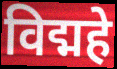
विद्महे